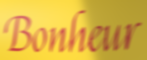
Bonheur